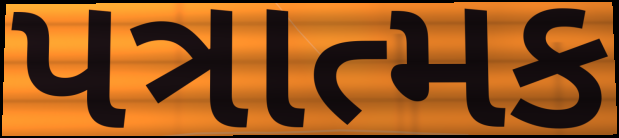
પત્રાત્મક